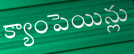
క్యాంపెయిన్లు